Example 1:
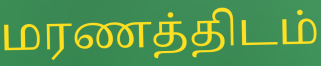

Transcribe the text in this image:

மரணத்திடம்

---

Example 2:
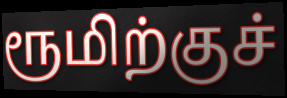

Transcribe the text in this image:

ரூமிற்குச்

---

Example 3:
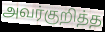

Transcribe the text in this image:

அவர்குறித்த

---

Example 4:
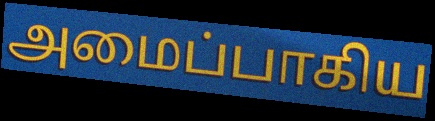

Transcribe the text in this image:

அமைப்பாகிய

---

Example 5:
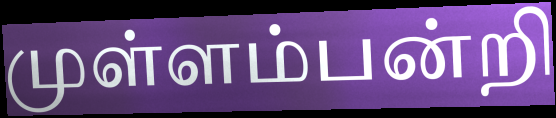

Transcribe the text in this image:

முள்ளம்பன்றி